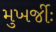
મુખર્જીઃ